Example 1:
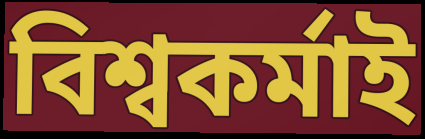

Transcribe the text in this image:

বিশ্বকৰ্মাই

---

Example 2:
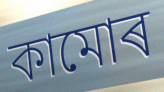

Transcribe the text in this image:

কামোৰ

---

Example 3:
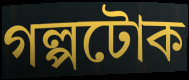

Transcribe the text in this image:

গল্পটোক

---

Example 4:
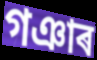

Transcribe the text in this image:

গঞাৰ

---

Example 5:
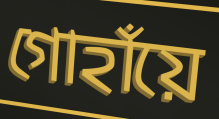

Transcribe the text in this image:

গোহাঁয়ে